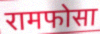
रामफोसा